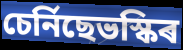
চেৰ্নিছেভস্কিৰ